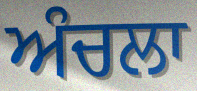
ਅੰਚਲਾ